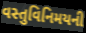
વસ્તુવિનિમયની